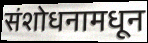
संशोधनामधून